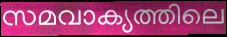
സമവാക്യത്തിലെ